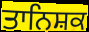
ਤਾਨਿਸ਼ਕ